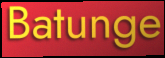
Batunge